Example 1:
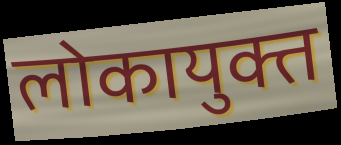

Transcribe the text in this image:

लोकायुक्त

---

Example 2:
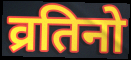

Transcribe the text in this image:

व्रतिनो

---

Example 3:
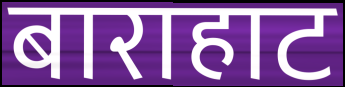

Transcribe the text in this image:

बाराहाट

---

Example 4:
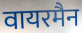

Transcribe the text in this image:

वायरमैन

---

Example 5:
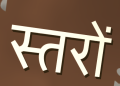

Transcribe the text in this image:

स्तरों